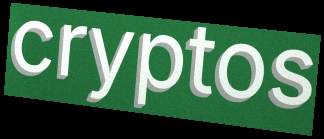
cryptos